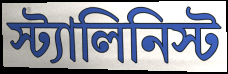
স্ট্যালিনিস্ট